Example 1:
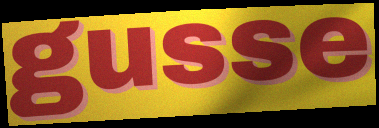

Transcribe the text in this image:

gusse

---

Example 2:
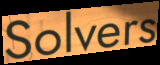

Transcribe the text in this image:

Solvers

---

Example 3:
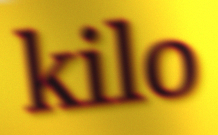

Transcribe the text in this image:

kilo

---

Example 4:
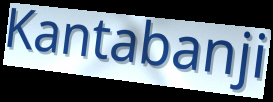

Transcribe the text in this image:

Kantabanji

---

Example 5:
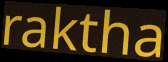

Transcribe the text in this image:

raktha